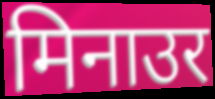
मिनाउर